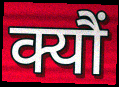
क्यौं